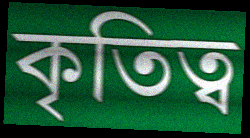
কৃতিত্ব